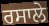
ਰਸਾਲੇ